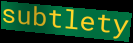
subtlety